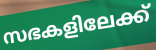
സഭകളിലേക്ക്